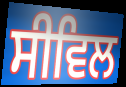
ਸੀਵਿਲ